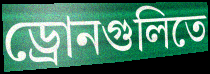
ড্রোনগুলিতে